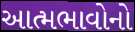
આત્મભાવોનો